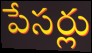
పేసర్లు